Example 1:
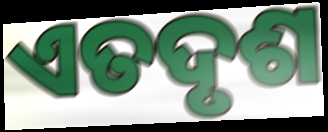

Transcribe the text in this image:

ଏତଦୃଶ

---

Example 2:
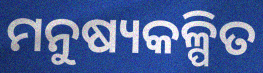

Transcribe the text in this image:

ମନୁଷ୍ୟକଳ୍ପିତ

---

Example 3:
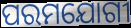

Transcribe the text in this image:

ପରମଯୋଗୀ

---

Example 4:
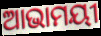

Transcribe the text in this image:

ଆଭାମୟୀ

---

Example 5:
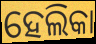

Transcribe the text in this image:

ହେଲିକା